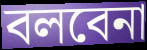
বলবেনা